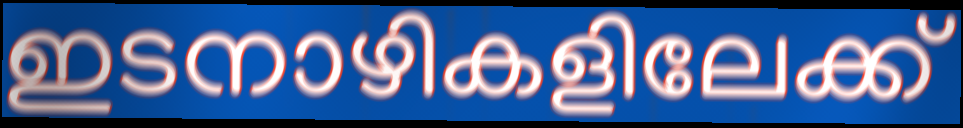
ഇടനാഴികളിലേക്ക്